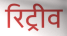
रिट्रीव